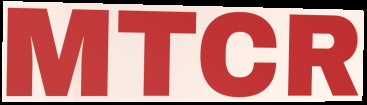
MTCR